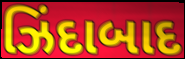
ઝિંદાબાદ